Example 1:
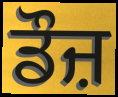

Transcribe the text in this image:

ਡੌਜ਼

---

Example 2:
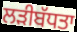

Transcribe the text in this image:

ਲੜੀਬੱਧਤਾ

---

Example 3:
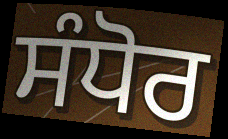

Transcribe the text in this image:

ਸੰਧੋਰ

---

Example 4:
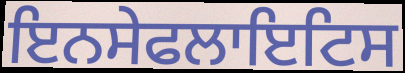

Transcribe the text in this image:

ਇਨਸੇਫਲਾਇਟਿਸ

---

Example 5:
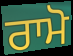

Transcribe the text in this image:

ਰਾਮੋ